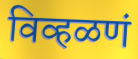
विव्हळणं